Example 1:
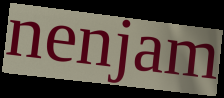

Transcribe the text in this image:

nenjam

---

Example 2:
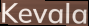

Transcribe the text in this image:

Kevala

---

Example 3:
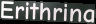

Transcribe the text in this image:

Erithrina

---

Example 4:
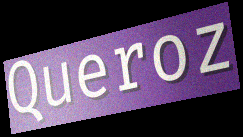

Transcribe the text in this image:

Queroz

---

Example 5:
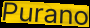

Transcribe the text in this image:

Purano